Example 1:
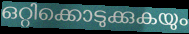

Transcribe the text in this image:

ഒറ്റിക്കൊടുക്കുകയും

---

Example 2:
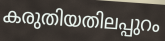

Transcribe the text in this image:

കരുതിയതിലപ്പുറം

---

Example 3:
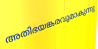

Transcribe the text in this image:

അതിഭയങ്കരവുമാകുന്നു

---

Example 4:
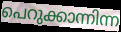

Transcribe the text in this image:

പെറുക്കാന്നിന്ന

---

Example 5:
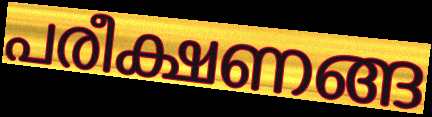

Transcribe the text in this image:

പരീക്ഷണങ്ങ